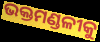
ଭକ୍ତମଣ୍ଡଳୀକୁ